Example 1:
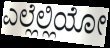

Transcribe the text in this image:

ಎಲ್ಲೆಲ್ಲಿಯೋ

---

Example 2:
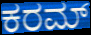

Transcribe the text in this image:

ಕರಮ್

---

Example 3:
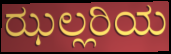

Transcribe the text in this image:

ಝಲ್ಲರಿಯ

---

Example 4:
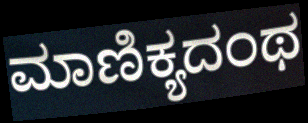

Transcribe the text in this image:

ಮಾಣಿಕ್ಯದಂಥ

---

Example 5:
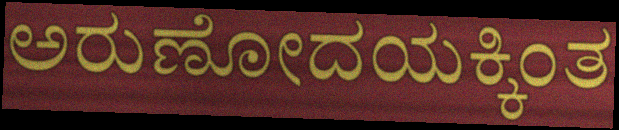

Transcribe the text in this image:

ಅರುಣೋದಯಕ್ಕಿಂತ